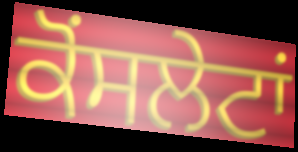
ਕੋਂਸਲੇਟਾਂ